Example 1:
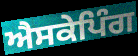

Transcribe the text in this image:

ਐਸਕੇਪਿੰਗ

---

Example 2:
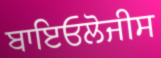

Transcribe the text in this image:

ਬਾਇਓਲੋਜੀਸ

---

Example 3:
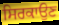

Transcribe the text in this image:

ਸਿਰਕਾਉਣ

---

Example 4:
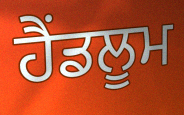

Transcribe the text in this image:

ਹੈਂਡਲੂਮ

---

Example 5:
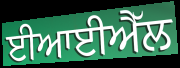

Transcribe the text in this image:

ਈਆਈਐੱਲ